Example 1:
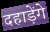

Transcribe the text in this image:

दहाड़ेंगे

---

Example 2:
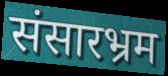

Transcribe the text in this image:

संसारभ्रम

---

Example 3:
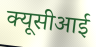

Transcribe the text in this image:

क्यूसीआई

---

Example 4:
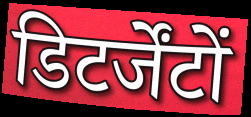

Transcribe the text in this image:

डिटर्जेंटों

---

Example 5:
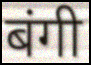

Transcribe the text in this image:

बंगी